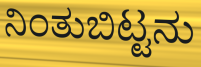
ನಿಂತುಬಿಟ್ಟನು